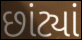
છાંટ્યાં